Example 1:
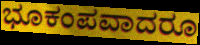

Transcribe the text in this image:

ಭೂಕಂಪವಾದರೂ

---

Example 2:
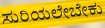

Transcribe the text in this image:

ಸುರಿಯಲೇಬೇಕು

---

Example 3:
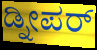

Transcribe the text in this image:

ಡ್ನೀಪರ್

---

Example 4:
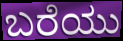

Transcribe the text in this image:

ಬರೆಯು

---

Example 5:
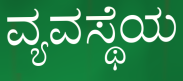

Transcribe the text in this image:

ವ್ಯವಸ್ಥೆಯ